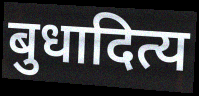
बुधादित्य